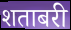
शताबरी